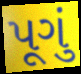
પૂગું